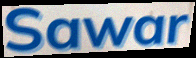
Sawar